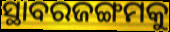
ସ୍ଥାବରଜଙ୍ଗମକୁ